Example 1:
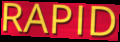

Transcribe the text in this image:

RAPID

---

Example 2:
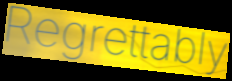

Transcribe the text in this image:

Regrettably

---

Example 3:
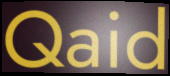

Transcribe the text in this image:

Qaid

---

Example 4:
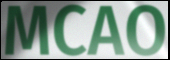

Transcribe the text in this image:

MCAO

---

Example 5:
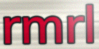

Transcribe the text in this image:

rmrl